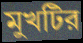
মুখটির